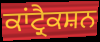
ਕਾਂਟ੍ਰੈਕਸ਼ਨ